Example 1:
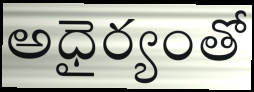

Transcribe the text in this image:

అధైర్యంతో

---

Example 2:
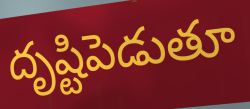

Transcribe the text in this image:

దృష్టిపెడుతూ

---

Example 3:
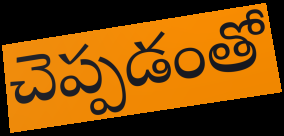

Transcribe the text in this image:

చెప్పడంతో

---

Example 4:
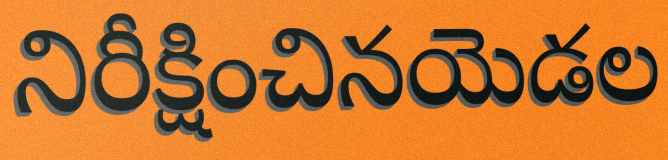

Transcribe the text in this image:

నిరీక్షించినయెడల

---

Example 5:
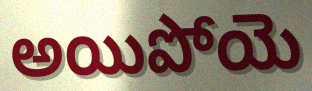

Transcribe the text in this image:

అయిపోయె